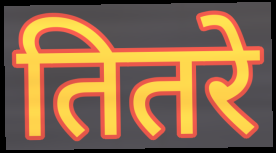
तितरे